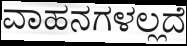
ವಾಹನಗಳಲ್ಲದೆ